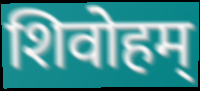
शिवोहम्